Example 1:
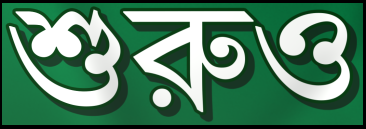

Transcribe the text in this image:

শুরুও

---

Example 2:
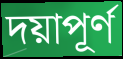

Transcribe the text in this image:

দয়াপূর্ণ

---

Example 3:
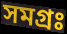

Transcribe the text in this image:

সমগ্রঃ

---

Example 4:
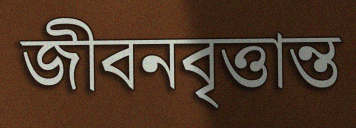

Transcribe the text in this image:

জীবনবৃত্তান্ত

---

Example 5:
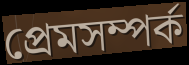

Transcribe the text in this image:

প্রেমসম্পর্ক